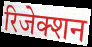
रिजेक्शन